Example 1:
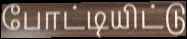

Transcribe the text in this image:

போட்டியிட்டு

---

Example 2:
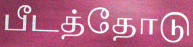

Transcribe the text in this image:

பீடத்தோடு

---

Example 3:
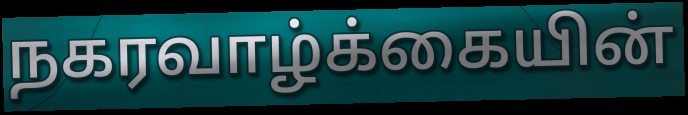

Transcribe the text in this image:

நகரவாழ்க்கையின்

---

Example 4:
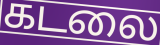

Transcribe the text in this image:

கடலை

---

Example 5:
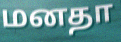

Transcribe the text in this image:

மனதா